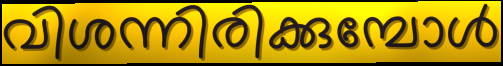
വിശന്നിരിക്കുമ്പോൾ